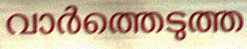
വാർത്തെടുത്ത